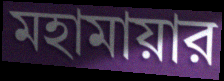
মহামায়ার